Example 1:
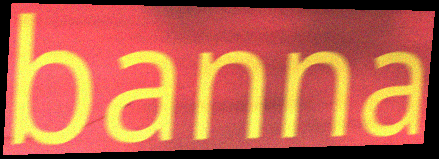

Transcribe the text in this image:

banna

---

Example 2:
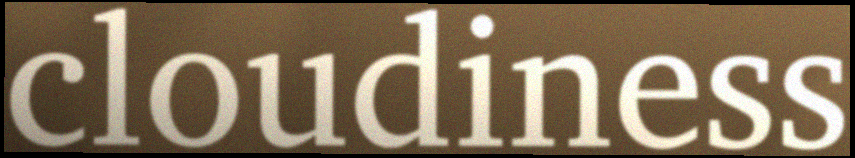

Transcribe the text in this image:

cloudiness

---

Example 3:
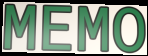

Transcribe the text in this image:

MEMO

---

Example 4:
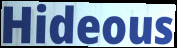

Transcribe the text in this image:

Hideous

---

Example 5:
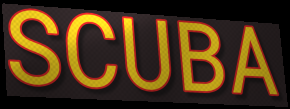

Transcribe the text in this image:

SCUBA